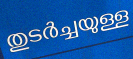
തുടർച്ചയുള്ള